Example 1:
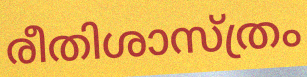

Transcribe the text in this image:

രീതിശാസ്ത്രം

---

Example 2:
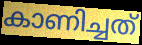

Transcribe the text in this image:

കാണിച്ചത്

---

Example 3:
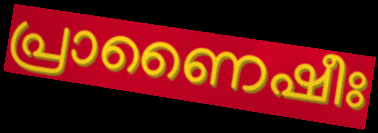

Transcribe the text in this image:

പ്രാണൈഷീഃ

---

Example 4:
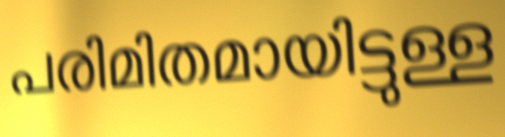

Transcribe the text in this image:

പരിമിതമായിട്ടുള്ള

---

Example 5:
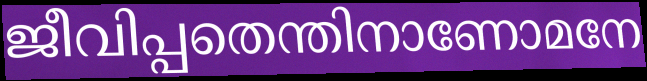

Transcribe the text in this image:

ജീവിപ്പതെന്തിനാണോമനേ